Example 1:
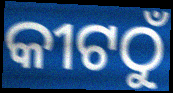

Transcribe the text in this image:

କୀଟଠୁଁ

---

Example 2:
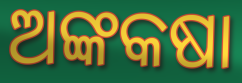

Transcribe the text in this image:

ଅଙ୍କକଷା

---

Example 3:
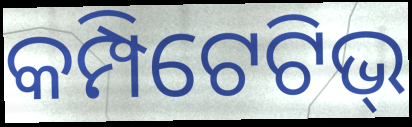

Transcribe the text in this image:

କମ୍ପିଟେଟିଭ୍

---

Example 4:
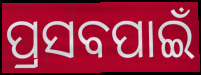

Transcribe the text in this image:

ପ୍ରସବପାଇଁ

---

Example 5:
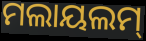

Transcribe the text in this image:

ମଲାୟଲମ୍